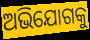
ଅଭିଯୋଗକୁ